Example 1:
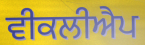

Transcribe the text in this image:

ਵੀਕਲੀਐਪ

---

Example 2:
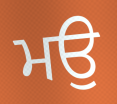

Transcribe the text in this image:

ਮਉ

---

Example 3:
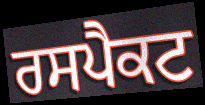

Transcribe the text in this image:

ਰਸਪੈਕਟ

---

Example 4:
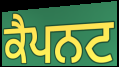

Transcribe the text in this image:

ਕੈਪਨਟ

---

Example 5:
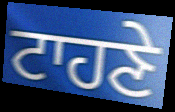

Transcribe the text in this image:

ਟਾਹਣੇ